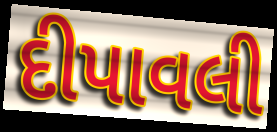
દીપાવલી